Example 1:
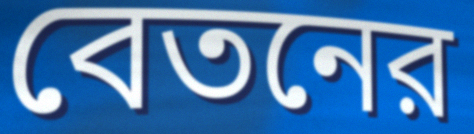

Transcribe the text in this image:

বেতনের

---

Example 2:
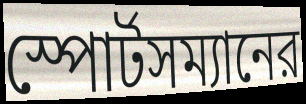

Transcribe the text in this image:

স্পোর্টসম্যানের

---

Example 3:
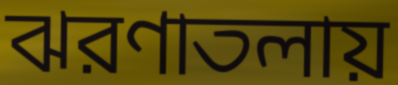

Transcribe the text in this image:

ঝরণাতলায়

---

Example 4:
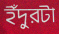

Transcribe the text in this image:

ইঁদুরটা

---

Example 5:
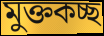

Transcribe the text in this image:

মুক্তকচ্ছ